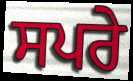
ਸਪਰੇ